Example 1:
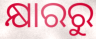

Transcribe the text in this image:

କ୍ଷାରରୁ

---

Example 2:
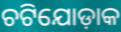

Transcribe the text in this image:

ଚଟିଯୋଡ଼ାକ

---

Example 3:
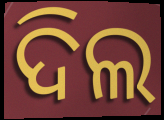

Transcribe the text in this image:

ଦିଲ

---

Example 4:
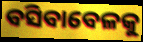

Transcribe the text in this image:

ବସିବାବେଳକୁ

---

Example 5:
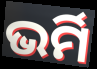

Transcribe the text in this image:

ଭର୍ମି